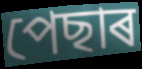
পেছাৰ